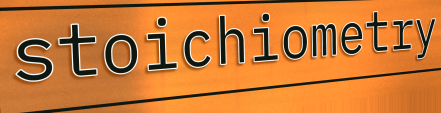
stoichiometry